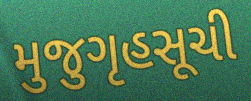
મુજુગૃહસૂચી